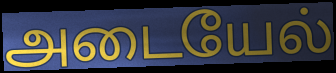
அடையேல்